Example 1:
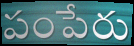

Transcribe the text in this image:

పంపేరు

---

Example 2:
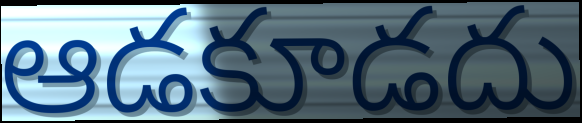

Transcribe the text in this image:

ఆడకూడదు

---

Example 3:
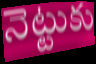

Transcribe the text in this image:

నెట్టుకు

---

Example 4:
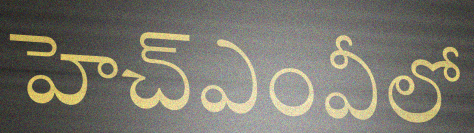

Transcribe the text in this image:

హెచ్ఎంవీలో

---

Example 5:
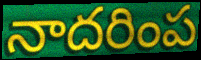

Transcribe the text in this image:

నాదరింప